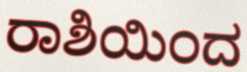
ರಾಶಿಯಿಂದ